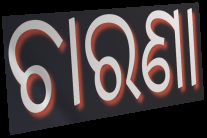
ଚାରଣା